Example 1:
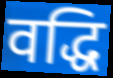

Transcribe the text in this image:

वद्धि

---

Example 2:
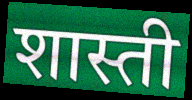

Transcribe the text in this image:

शास्ती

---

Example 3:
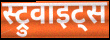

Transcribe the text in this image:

स्ट्रुवाइट्स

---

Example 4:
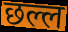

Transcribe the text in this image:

छल्ल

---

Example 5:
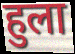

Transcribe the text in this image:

हुला